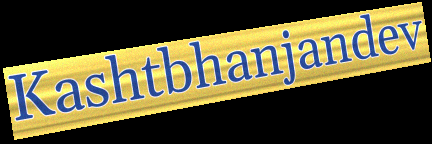
Kashtbhanjandev